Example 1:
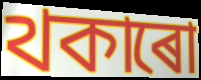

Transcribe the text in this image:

থকাৰো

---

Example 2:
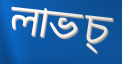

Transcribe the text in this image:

লাভচ্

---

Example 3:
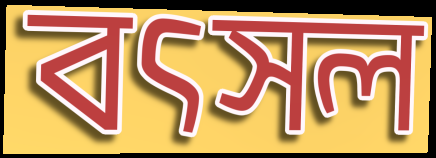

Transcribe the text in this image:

বৎসল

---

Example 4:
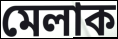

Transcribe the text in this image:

মেলাক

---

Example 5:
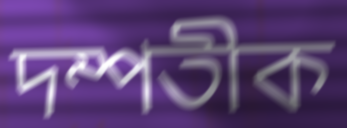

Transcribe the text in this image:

দম্পতীক